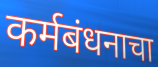
कर्मबंधनाचा